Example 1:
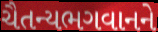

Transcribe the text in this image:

ચૈતન્યભગવાનને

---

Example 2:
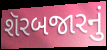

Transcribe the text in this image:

શૅરબજારનું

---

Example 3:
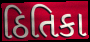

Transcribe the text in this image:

ઠિતિકા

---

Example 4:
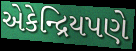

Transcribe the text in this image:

એકેન્દ્રિયપણે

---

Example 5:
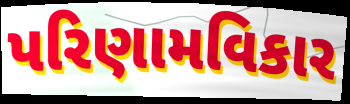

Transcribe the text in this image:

પરિણામવિકાર